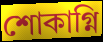
শোকাগ্নি